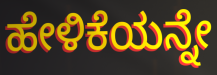
ಹೇಳಿಕೆಯನ್ನೇ